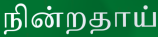
நின்றதாய்